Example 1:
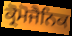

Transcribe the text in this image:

ਕ੍ਰੋਮੋਜੈਨਿਕ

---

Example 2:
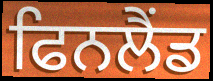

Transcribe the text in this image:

ਫਿਨਲੈਂਡ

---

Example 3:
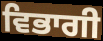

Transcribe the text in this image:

ਵਿਭਾਗੀ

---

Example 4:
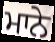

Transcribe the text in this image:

ਮਾਨੇ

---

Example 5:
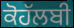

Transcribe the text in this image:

ਕੋਹੱਲਬੀ